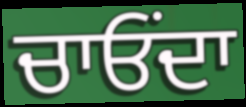
ਚਾਓਂਦਾ